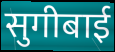
सुगीबाई